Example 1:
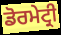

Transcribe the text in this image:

ਡੋਰਮੇਟ੍ਰੀ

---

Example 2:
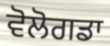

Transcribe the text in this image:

ਵੋਲੋਗਡਾ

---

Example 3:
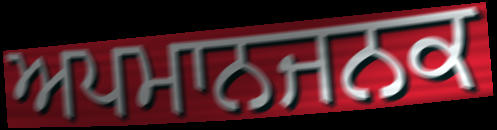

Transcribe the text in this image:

ਅਪਮਾਨਜਨਕ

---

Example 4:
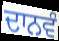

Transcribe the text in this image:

ਦਾਨਵੰ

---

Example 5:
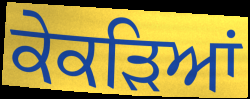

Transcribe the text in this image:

ਕੇਕੜਿਆਂ